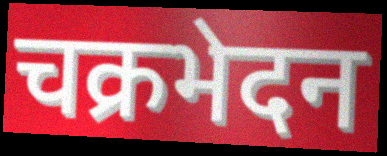
चक्रभेदन